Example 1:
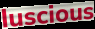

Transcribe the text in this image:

luscious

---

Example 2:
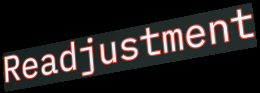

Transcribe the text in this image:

Readjustment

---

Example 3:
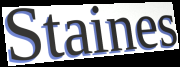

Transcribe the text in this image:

Staines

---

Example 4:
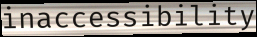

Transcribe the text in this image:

inaccessibility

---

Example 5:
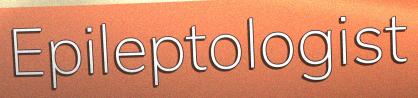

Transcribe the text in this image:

Epileptologist